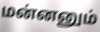
மன்னனும்